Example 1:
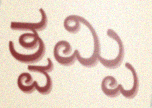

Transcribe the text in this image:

ತ್ವಮ್ಪಿ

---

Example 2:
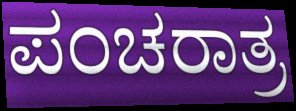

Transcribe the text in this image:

ಪಂಚರಾತ್ರ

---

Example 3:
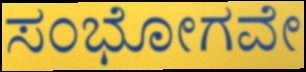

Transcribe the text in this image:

ಸಂಭೋಗವೇ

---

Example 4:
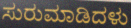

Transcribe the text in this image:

ಸುರುಮಾಡಿದಳು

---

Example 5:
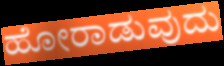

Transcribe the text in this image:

ಹೋರಾಡುವುದು